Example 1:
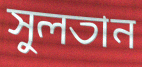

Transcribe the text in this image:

সুলতান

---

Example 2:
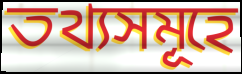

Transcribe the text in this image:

তথ্যসমূহে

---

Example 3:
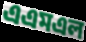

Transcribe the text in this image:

এএমএল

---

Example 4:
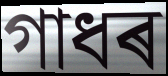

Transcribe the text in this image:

গাধৰ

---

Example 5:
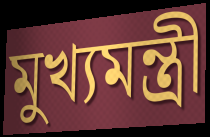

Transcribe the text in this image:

মুখ্যমন্ত্ৰী